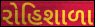
રોહિશાળા